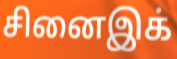
சினைஇக்